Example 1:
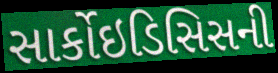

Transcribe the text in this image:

સાર્કોઇડિસિસની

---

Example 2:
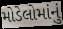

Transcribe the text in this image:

મોડેલોમાંનું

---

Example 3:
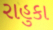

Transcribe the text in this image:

રાહુકા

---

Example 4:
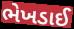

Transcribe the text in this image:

ભેખડાઈ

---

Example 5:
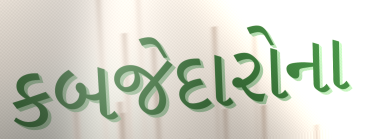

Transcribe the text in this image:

કબજેદારોના